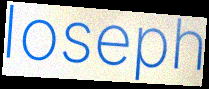
Ioseph